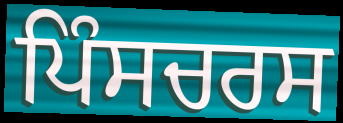
ਪਿੰਸਚਰਸ